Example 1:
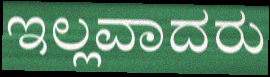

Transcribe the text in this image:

ಇಲ್ಲವಾದರು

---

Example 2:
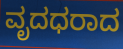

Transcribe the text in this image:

ವೃದಧರಾದ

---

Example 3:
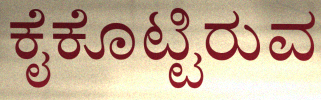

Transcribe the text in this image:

ಕೈಕೊಟ್ಟಿರುವ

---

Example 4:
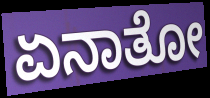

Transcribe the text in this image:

ಏನಾತೋ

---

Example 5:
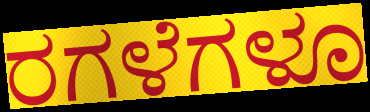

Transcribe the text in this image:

ರಗಳೆಗಳೂ